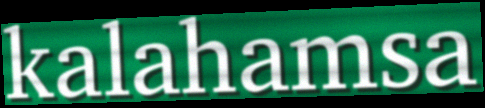
kalahamsa